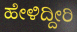
ಹೇಳಿದ್ದೀರಿ